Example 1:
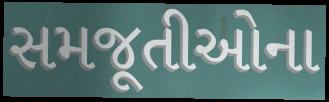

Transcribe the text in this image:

સમજૂતીઓના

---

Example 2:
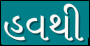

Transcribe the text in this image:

હવથી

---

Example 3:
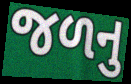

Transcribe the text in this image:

જળનુ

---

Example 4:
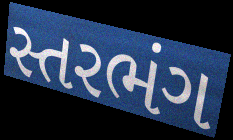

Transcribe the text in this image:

સ્તરભંગ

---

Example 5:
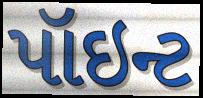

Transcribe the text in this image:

પૉઇન્ટ